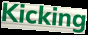
Kicking